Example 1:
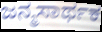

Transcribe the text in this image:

ಜನ್ಮಸಾರ್ಥಕ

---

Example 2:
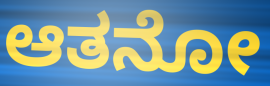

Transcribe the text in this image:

ಆತನೋ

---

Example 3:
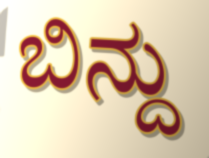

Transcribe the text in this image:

ಬಿನ್ದು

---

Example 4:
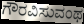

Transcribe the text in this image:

ಗೌರವಿಸುವಂಥ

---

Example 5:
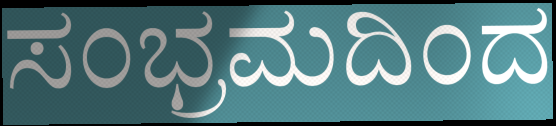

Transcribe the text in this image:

ಸಂಭ್ರಮದಿಂದ